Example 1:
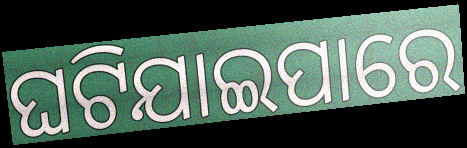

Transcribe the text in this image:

ଘଟିଯାଇପାରେ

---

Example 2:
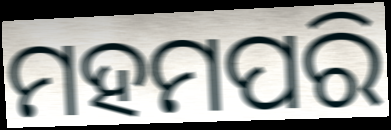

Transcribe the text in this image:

ମହମପରି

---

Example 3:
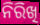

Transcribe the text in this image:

ନିରିଖି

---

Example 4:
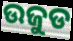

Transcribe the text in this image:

ଉଜୁଡ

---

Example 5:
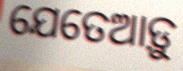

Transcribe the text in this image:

ଯେତେଆଡ଼ୁ